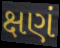
ક્ષણં